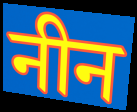
नीन